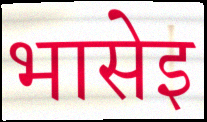
भासेइ